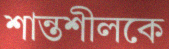
শান্তশীলকে